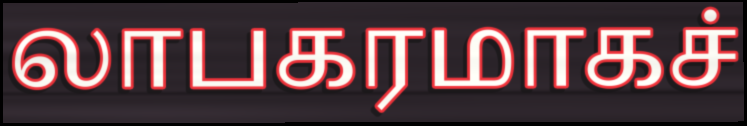
லாபகரமாகச்